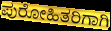
ಪುರೋಹಿತರಿಗಾಗಿ